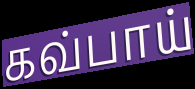
கவ்பாய்